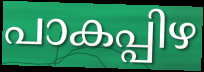
പാകപ്പിഴ